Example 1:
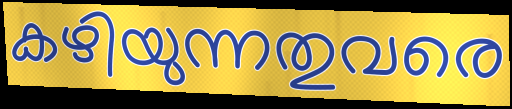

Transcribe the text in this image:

കഴിയുന്നതുവരെ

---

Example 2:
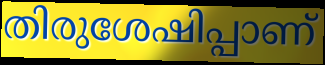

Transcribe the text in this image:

തിരുശേഷിപ്പാണ്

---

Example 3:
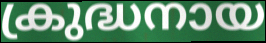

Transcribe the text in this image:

ക്രുദ്ധനായ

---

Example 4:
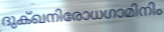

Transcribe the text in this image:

ദുക്ഖനിരോധഗാമിനിം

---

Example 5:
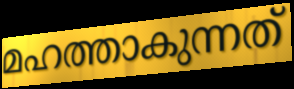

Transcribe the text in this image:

മഹത്താകുന്നത്